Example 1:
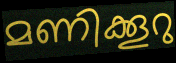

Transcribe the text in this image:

മണിക്കൂറു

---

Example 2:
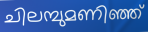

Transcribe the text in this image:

ചിലമ്പുമണിഞ്ഞ്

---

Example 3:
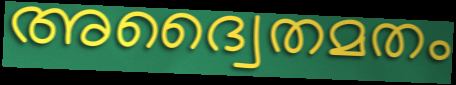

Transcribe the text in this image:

അദ്വൈതമതം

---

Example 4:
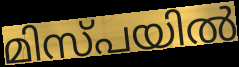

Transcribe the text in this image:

മിസ്പയിൽ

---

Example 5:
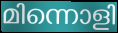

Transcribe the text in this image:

മിന്നൊളി